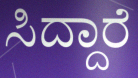
ಸಿದ್ದಾರೆ